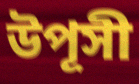
উপূসী